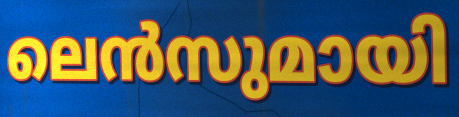
ലെൻസുമായി